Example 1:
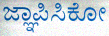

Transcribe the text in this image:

ಜ್ಞಾಪಿಸಿಕೋ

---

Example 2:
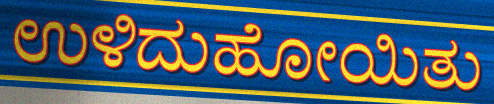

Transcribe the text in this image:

ಉಳಿದುಹೋಯಿತು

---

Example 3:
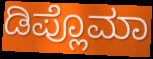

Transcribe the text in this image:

ಡಿಪ್ಲೊಮಾ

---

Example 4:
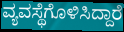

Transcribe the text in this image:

ವ್ಯವಸ್ಥೆಗೊಳಿಸಿದ್ದಾರೆ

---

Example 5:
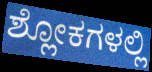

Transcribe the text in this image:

ಶ್ಲೋಕಗಳಲ್ಲಿ